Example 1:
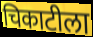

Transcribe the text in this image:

चिकाटीला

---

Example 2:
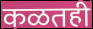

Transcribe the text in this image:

कळतही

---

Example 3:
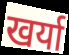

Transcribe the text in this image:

खर्या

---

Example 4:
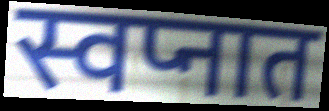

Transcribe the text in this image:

स्वप्नात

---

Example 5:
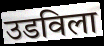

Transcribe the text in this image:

उडविला